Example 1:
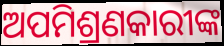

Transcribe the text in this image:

ଅପମିଶ୍ରଣକାରୀଙ୍କ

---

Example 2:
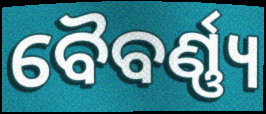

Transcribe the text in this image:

ବୈବର୍ଣ୍ଣ୍ୟ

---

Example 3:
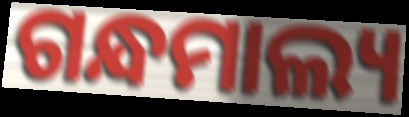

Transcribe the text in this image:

ଗନ୍ଧମାଲ୍ୟ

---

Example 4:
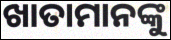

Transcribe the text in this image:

ଖାତାମାନଙ୍କୁ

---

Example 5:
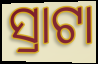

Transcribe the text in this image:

ସ୍ରାଟା